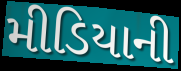
મીડિયાની